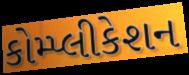
કોમ્પ્લીકેશન